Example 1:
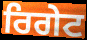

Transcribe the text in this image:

ਰਿਗੇਟ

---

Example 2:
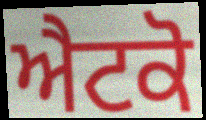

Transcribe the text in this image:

ਐਟਕੋ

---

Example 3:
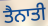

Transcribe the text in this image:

ਤੈਨਾਤੀ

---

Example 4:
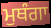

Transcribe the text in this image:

ਮੁਥੰਗਾ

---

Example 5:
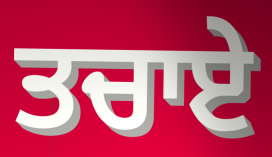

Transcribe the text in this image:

ਤਚਾਏ